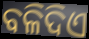
ବଳିଦିଏ